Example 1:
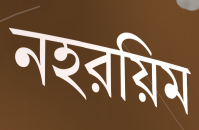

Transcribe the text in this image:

নহরয়িম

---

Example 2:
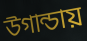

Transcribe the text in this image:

উগান্ডায়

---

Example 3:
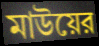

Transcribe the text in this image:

মাউয়ের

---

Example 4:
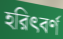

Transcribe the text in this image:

হরিৎবর্ণ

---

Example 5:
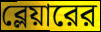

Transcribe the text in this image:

ব্লেয়ারের